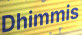
Dhimmis